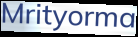
Mrityorma